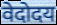
वेदोदय